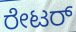
ರೇಟರ್